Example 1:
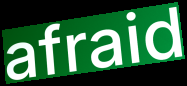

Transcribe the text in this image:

afraid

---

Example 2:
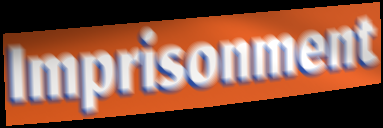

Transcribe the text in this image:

Imprisonment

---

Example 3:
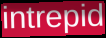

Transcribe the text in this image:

intrepid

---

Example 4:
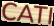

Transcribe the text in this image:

CATI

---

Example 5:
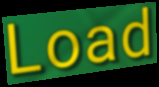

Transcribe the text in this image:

Load